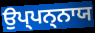
ਉਪ੍ਪਨ੍ਨਾਯ